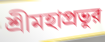
শ্রীমহাপ্রভুর